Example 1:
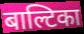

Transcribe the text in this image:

बाल्टिका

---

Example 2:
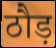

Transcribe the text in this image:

ठौड़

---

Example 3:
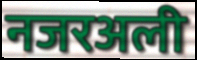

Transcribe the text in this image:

नजरअली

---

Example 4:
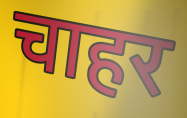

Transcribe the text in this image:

चाहर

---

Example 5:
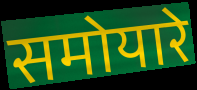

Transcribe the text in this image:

समोयारे